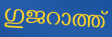
ഗുജറാത്ത്